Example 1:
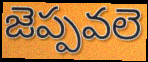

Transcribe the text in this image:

జెప్పవలె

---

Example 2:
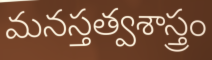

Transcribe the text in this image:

మనస్తత్వశాస్త్రం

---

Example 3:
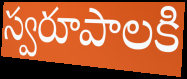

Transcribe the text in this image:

స్వరూపాలకి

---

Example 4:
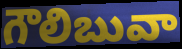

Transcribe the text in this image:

గౌలిబువా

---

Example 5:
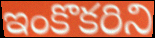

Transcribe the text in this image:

ఇంకొకరిని